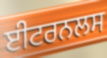
ਈਟਰਨਲਸ